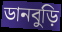
ডানবুড়ি